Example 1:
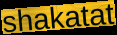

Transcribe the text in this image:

shakatat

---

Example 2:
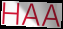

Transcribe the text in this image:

HAA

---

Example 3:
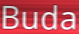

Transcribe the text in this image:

Buda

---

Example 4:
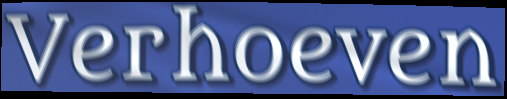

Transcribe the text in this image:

Verhoeven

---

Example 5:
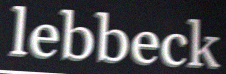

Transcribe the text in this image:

lebbeck